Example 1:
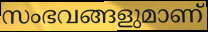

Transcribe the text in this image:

സംഭവങ്ങളുമാണ്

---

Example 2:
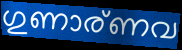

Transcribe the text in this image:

ഗുണാര്ണവ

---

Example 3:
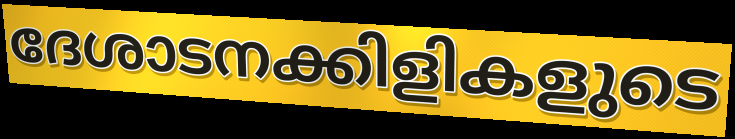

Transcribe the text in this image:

ദേശാടനക്കിളികളുടെ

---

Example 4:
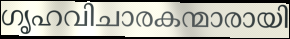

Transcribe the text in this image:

ഗൃഹവിചാരകന്മാരായി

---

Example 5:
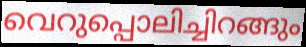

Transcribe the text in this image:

വെറുപ്പൊലിച്ചിറങ്ങും